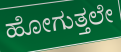
ಹೋಗುತ್ತಲೇ